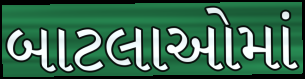
બાટલાઓમાં